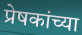
प्रेषकांच्या